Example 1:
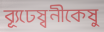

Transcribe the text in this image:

ব্যূঢেষ্বনীকেষু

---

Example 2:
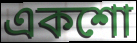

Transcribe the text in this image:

একশো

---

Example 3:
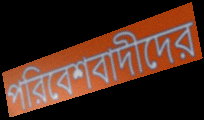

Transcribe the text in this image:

পরিবেশবাদীদের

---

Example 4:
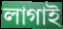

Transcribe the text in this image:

লাগাই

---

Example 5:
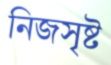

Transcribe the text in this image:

নিজসৃষ্ট